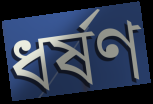
ধর্ষণ